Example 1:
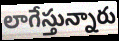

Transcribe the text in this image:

లాగేస్తున్నారు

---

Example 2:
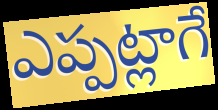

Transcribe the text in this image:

ఎప్పట్లాగే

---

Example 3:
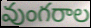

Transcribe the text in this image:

వుంగరాల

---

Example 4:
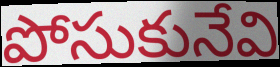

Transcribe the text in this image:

పోసుకునేవి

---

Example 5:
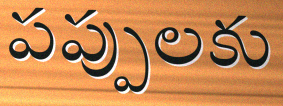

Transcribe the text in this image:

పప్పులకు